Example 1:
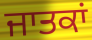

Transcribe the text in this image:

ਜਾਤਕਾਂ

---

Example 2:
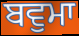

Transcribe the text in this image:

ਬਵੁਮਾ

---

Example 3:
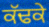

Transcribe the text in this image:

ਕੱਢਕੇ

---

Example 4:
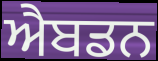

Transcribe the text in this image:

ਐਬਡਨ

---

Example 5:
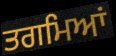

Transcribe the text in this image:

ਤਗਮਿਆਂ